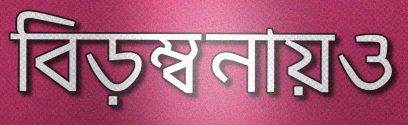
বিড়ম্বনায়ও